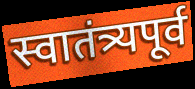
स्वातंत्र्यपूर्व